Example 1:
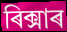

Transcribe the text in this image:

ৰিক্সাৰ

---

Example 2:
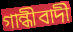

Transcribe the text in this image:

গান্ধীবাদী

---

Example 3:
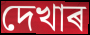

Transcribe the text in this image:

দেখাৰ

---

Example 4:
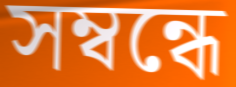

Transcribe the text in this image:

সম্বন্ধে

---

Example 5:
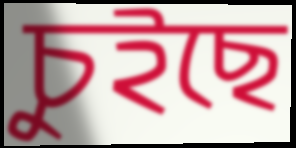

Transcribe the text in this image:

চুইছে